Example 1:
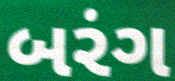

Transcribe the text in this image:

બરંગ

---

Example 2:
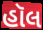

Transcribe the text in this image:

હૉલ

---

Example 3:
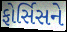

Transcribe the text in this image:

ફોર્સિસને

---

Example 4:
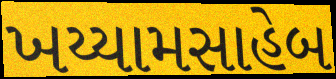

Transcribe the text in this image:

ખય્યામસાહેબ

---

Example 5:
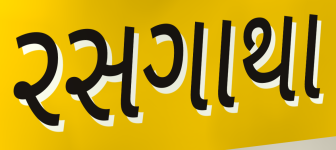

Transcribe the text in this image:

રસગાથા